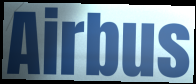
Airbus